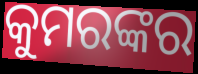
କୁମରଙ୍କର